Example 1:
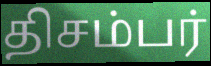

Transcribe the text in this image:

திசம்பர்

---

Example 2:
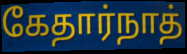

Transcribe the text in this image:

கேதார்நாத்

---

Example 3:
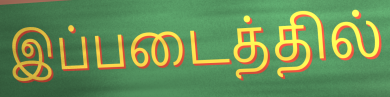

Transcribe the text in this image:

இப்படைத்தில்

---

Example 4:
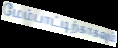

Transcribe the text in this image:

மேம்பாட்டிற்காகவும்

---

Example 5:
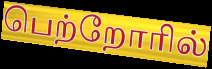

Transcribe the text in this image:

பெற்றோரில்